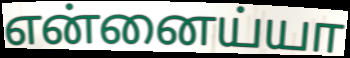
என்னைய்யா